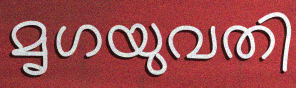
മൃഗയുവതി